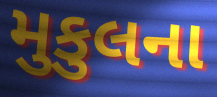
મુકુલના